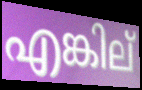
എങ്കില്